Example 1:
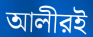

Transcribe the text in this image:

আলীরই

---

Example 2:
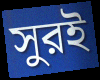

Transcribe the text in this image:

সুরই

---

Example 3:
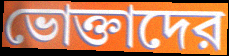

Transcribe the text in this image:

ভোক্তাদের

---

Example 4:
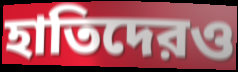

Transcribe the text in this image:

হাতিদেরও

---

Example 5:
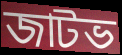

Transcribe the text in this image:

জাটভ